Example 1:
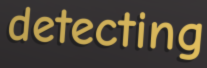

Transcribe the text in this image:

detecting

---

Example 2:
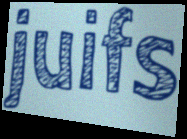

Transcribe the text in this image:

juifs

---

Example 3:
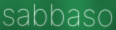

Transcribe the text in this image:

sabbaso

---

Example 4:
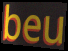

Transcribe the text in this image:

beu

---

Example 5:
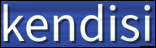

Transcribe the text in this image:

kendisi